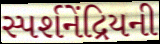
સ્પર્શનેંદ્રિયની